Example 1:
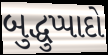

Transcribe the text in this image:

બુદ્ધુપ્પાદો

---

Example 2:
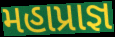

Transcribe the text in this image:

મહાપ્રાજ્ઞ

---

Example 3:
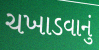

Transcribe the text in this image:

ચખાડવાનું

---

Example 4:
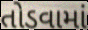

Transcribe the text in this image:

તોડવામાં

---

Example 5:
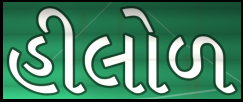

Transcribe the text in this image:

હીલોળ